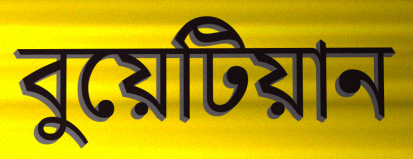
বুয়েটিয়ান